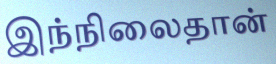
இந்நிலைதான்